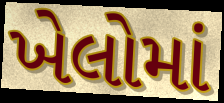
ખેલોમાં